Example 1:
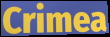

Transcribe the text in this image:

Crimea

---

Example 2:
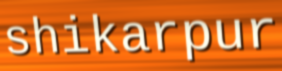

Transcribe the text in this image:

shikarpur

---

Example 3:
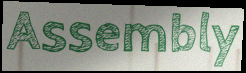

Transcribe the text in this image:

Assembly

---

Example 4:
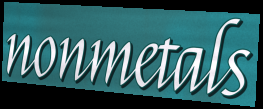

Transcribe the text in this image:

nonmetals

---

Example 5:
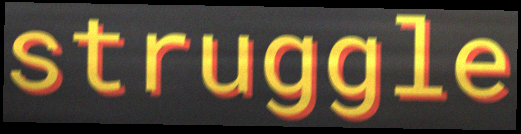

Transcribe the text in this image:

struggle